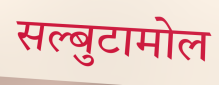
सल्बुटामोल